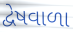
દ્વેષવાળા